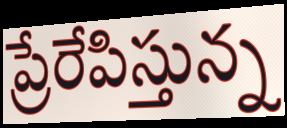
ప్రేరేపిస్తున్న